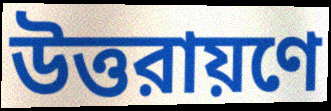
উত্তরায়ণে